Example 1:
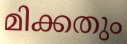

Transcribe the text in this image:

മിക്കതും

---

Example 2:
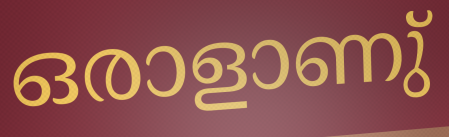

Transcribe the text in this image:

ഒരാളാണു്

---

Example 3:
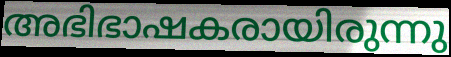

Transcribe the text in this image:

അഭിഭാഷകരായിരുന്നു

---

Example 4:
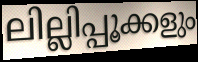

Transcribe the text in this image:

ലില്ലിപ്പൂക്കളും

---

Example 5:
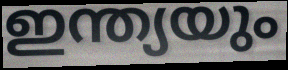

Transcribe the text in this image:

ഇന്ത്യയും